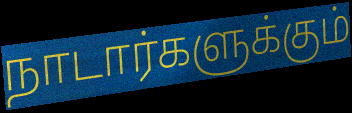
நாடார்களுக்கும்